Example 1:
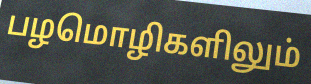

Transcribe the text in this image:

பழமொழிகளிலும்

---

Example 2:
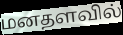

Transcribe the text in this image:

மனதளவில்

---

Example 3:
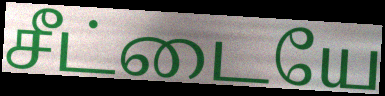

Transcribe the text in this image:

சீட்டையே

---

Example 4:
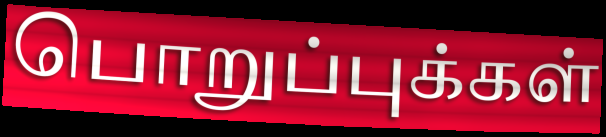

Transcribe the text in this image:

பொறுப்புக்கள்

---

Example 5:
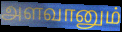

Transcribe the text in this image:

அளவானும்